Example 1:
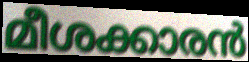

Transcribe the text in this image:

മീശക്കാരൻ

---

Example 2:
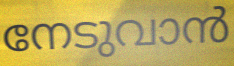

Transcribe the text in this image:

നേടുവാൻ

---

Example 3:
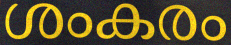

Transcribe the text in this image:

ശംകരം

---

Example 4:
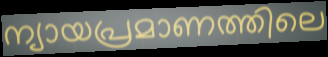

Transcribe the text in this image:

ന്യായപ്രമാണത്തിലെ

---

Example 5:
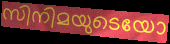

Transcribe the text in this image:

സിനിമയുടെയോ